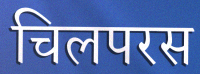
चिलपरस